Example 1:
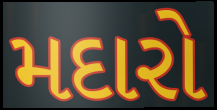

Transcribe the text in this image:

મદારો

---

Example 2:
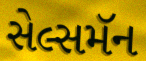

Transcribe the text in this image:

સેલ્સમૅન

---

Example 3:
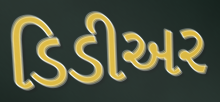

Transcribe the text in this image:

ડિડીઅર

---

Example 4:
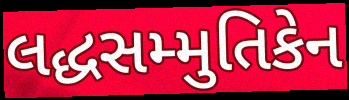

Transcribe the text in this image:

લદ્ધસમ્મુતિકેન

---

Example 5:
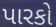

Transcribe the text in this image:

પારકો